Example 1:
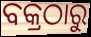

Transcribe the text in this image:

ବକ୍ରଠାରୁ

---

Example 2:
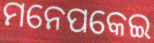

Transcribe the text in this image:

ମନେପକେଇ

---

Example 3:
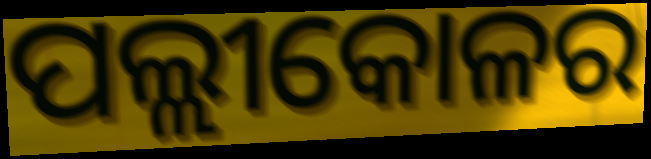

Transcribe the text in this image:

ପଲ୍ଲୀକୋଳର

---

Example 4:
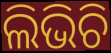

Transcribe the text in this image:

ଲିଭିଚି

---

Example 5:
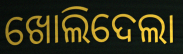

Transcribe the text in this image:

ଖୋଲିଦେଲା